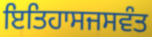
ਇਤਿਹਾਸਜਸਵੰਤ